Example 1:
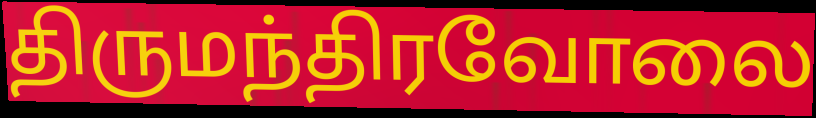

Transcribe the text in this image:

திருமந்திரவோலை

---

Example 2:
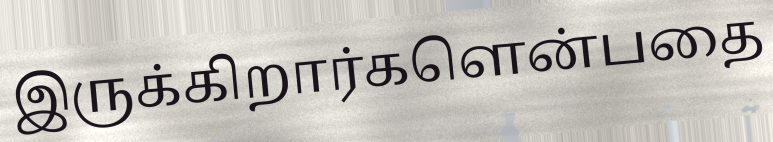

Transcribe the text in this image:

இருக்கிறார்களென்பதை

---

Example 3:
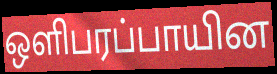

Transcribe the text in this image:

ஒளிபரப்பாயின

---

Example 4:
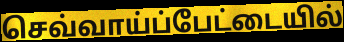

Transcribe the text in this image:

செவ்வாய்ப்பேட்டையில்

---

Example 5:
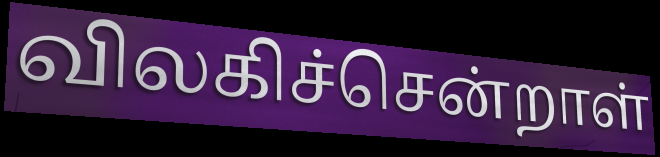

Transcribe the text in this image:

விலகிச்சென்றாள்